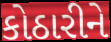
કોઠારીને